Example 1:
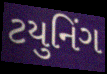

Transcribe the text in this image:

ટયુનિંગ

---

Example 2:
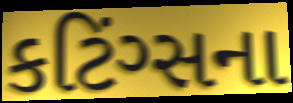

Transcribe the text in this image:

કટિંગ્સના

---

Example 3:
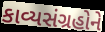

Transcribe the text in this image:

કાવ્યસંગ્રહોને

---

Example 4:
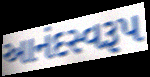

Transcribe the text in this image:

આનંદસ્વરૂપ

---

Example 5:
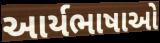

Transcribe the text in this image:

આર્યભાષાઓ